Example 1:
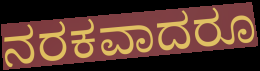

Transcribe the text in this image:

ನರಕವಾದರೂ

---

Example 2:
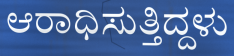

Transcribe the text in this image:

ಆರಾಧಿಸುತ್ತಿದ್ದಳು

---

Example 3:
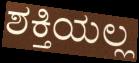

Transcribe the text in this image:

ಶಕ್ತಿಯಲ್ಲ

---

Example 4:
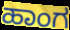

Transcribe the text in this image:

ಹಾಂಗ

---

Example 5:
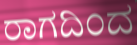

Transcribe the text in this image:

ರಾಗದಿಂದ